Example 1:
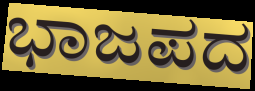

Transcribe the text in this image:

ಭಾಜಪದ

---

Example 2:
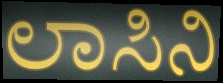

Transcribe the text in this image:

ಲಾಸಿನಿ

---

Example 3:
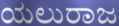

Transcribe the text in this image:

ಯಲುರಾಜ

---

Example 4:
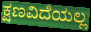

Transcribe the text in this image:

ಕ್ಷಣವಿದೆಯಲ್ಲ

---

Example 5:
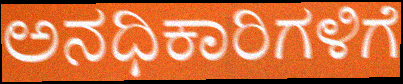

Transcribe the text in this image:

ಅನಧಿಕಾರಿಗಳಿಗೆ